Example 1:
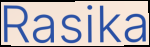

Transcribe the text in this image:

Rasika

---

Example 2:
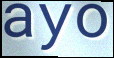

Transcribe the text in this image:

ayo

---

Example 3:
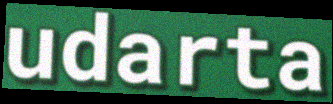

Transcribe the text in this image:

udarta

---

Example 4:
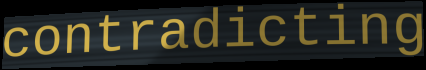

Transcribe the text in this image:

contradicting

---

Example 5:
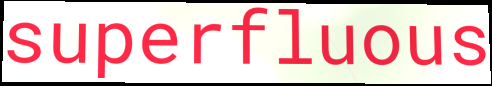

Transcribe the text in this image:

superfluous